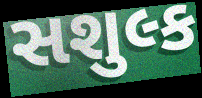
સશુલ્ક